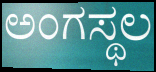
ಅಂಗಸ್ಥಲ